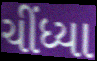
ચીંધ્યા